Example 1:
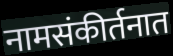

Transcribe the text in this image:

नामसंकीर्तनात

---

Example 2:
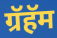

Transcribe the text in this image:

ग्रॅहॅम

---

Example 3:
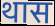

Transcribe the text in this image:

थास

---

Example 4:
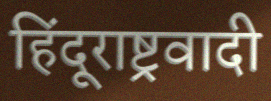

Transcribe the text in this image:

हिंदूराष्ट्रवादी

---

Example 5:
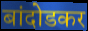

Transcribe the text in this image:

बांदोडकर